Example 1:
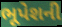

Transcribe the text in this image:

ભૂપેશની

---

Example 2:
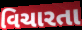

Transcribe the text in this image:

વિચારતા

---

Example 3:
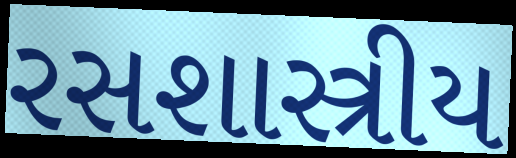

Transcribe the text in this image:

રસશાસ્ત્રીય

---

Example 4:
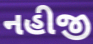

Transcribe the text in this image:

નહીજી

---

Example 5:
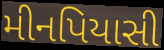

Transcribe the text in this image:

મીનપિયાસી